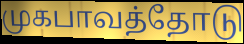
முகபாவத்தோடு